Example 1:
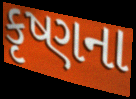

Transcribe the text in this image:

કૃષ્ણના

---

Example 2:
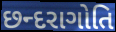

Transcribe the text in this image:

છન્દરાગોતિ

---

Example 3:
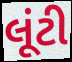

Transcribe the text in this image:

લૂંટી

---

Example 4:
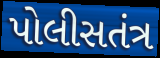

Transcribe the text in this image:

પોલીસતંત્ર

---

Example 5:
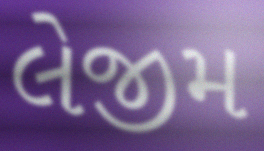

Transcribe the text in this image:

લેજીમ